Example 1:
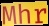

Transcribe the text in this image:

Mhr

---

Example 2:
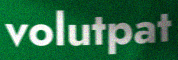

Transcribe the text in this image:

volutpat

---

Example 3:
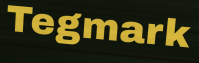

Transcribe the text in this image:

Tegmark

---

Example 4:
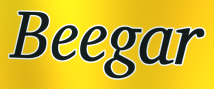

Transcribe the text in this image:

Beegar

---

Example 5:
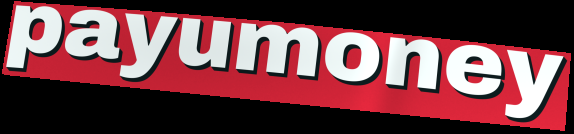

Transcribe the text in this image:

payumoney